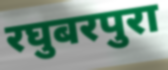
रघुबरपुरा